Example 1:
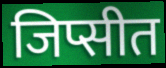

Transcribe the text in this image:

जिप्सीत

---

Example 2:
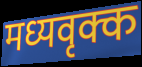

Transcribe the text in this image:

मध्यवृक्क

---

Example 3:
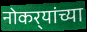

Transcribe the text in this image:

नोकर्‍यांच्या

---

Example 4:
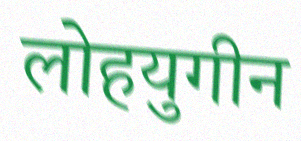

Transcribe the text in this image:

लोहयुगीन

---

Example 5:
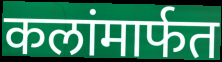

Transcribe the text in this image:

कलांमार्फत